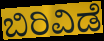
ಬಿರಿವಿಡೆ